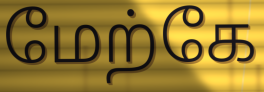
மேற்கே